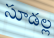
సూడల్ల